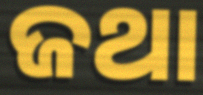
ଜଥା